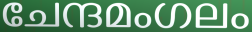
ചേന്ദമംഗലം